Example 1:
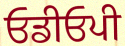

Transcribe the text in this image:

ਓਡੀਓਪੀ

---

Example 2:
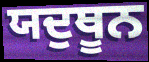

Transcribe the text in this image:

ਯਦੁਥੂਨ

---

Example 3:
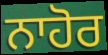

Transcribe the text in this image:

ਨਾਹੋਰ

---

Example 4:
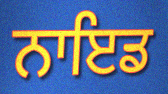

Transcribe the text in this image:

ਨਾਇਡ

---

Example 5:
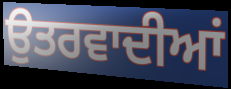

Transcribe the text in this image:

ਉਤਰਵਾਦੀਆਂ